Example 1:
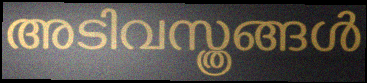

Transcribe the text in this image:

അടിവസ്ത്രങ്ങൾ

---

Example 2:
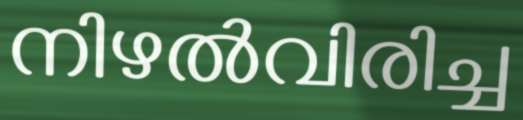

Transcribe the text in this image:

നിഴൽവിരിച്ച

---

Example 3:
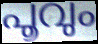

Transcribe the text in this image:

പൂവും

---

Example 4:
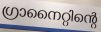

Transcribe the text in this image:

ഗ്രാനൈറ്റിന്റെ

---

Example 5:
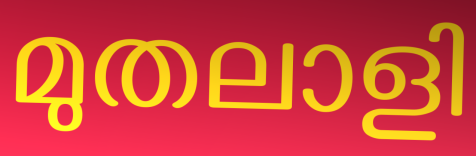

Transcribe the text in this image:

മുതലാളി